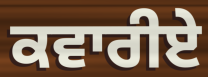
ਕਵਾਰੀਏ